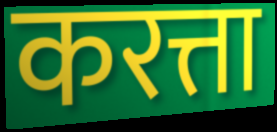
करत्ता